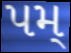
પમ્